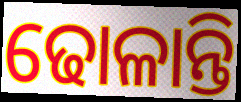
ଢୋଳାନ୍ତି